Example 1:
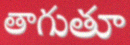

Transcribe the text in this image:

తాగుతూ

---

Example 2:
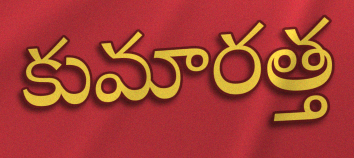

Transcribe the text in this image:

కుమారత్త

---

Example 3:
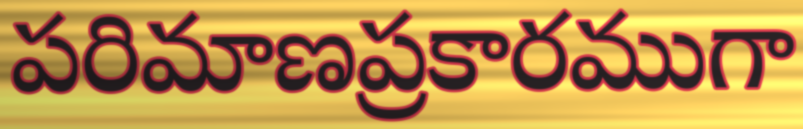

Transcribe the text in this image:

పరిమాణప్రకారముగా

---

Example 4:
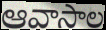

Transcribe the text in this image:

ఆవాసాల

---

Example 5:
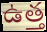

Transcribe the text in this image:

ఉత్త